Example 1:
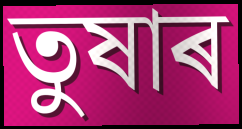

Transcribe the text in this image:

তুষাৰ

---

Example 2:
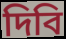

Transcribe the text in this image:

দিবি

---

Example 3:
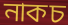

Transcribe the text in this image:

নাকচ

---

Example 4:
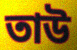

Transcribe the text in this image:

তাউ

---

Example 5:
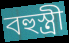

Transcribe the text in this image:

বহুস্ত্ৰী